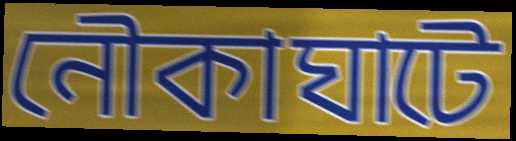
নৌকাঘাটে